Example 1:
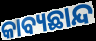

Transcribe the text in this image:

କାବ୍ୟଛାନ୍ଦ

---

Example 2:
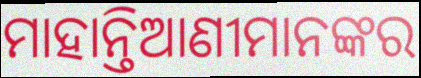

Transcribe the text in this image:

ମାହାନ୍ତିଆଣୀମାନଙ୍କର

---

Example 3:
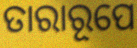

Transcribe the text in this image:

ତାରାରୂପେ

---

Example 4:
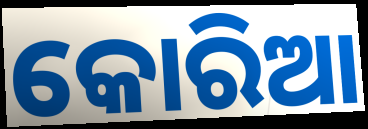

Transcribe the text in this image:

କୋରିଆ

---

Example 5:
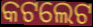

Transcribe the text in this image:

କଟଲେଟ